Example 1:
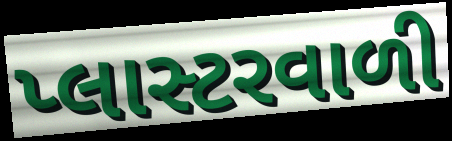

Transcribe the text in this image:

પ્લાસ્ટરવાળી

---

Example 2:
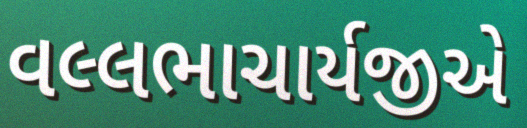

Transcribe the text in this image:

વલ્લભાચાર્યજીએ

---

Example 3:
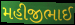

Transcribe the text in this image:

મહીજીભાઈ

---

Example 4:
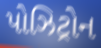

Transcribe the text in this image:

પોઝિટ્રોન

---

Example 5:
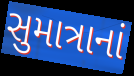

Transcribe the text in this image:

સુમાત્રાનાં